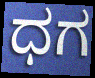
ಧಗ